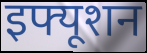
इफ्यूशन